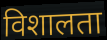
विशालता